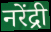
नरेंद्री